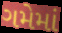
ગમેમાં